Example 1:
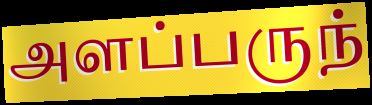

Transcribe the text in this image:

அளப்பருந்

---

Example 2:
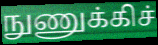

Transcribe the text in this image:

நுணுக்கிச்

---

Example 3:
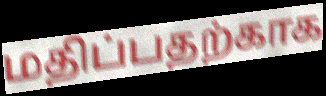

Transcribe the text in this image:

மதிப்பதற்காக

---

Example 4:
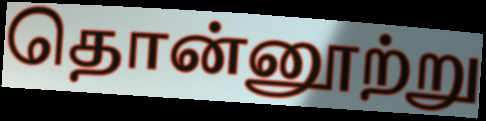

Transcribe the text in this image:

தொன்னூற்று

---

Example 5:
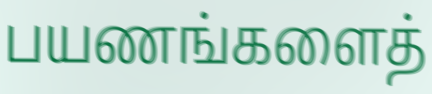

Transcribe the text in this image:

பயணங்களைத்